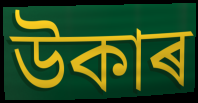
উকাৰ